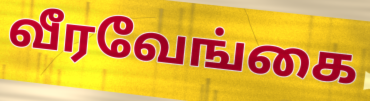
வீரவேங்கை